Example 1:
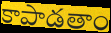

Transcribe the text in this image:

కాపాడతాం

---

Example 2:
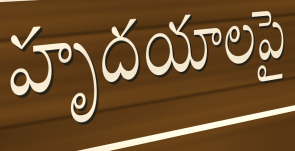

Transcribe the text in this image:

హృదయాలపై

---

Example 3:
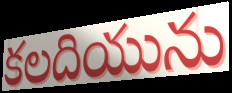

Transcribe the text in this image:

కలదియును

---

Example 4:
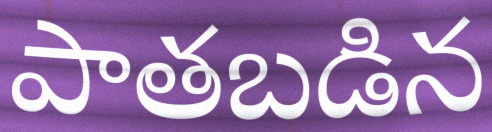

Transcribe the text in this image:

పాతబడిన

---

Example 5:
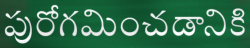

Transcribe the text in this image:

పురోగమించడానికి